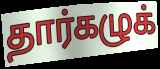
தார்கழுக்